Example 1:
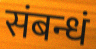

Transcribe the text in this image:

संबन्धं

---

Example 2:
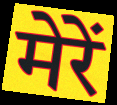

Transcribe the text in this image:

मेरें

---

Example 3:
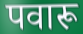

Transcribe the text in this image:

पवारू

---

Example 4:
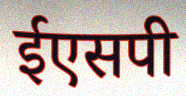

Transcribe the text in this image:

ईएसपी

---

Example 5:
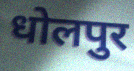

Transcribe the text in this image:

धोलपुर